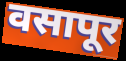
वसापूर